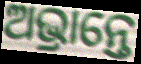
ଅଭ୍ରାନ୍ତେ